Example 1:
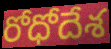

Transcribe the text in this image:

రోధోదేశ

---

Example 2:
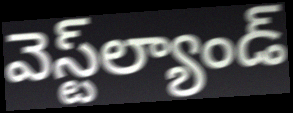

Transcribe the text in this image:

వెస్ట్‌ల్యాండ్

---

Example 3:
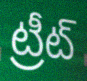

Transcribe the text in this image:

ట్రీట్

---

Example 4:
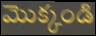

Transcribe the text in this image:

మొక్కండి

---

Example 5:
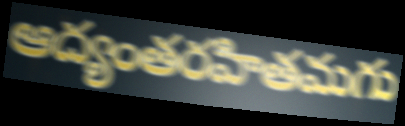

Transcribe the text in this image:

ఆద్యంతరహితమగు